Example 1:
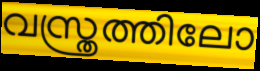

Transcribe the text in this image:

വസ്ത്രത്തിലോ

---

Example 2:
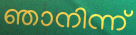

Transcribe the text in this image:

ഞാനിന്ന്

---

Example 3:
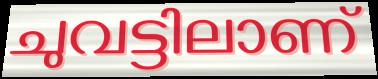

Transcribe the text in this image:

ചുവട്ടിലാണ്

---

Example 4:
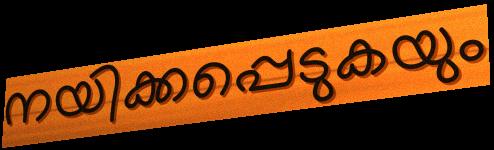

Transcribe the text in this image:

നയിക്കപ്പെടുകയും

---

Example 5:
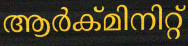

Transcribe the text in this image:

ആർക്മിനിറ്റ്